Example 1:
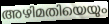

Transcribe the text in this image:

അഴിമതിയെയും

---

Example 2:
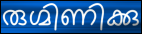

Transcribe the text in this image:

രുഗ്മിണിക്കു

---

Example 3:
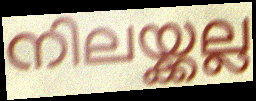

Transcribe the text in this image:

നിലയ്ക്കല്ല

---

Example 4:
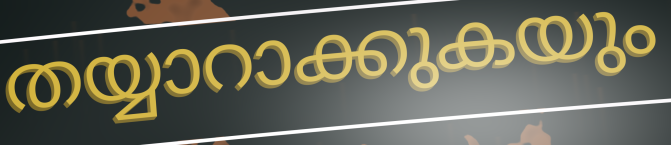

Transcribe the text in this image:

തയ്യാറാക്കുകയും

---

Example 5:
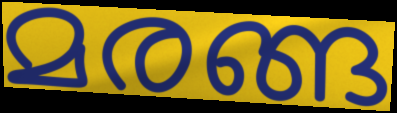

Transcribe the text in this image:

മരങ്ങ